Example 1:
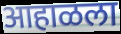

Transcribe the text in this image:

आहाळला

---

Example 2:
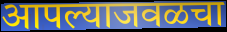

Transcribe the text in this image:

आपल्याजवळचा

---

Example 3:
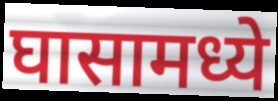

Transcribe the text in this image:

घासामध्ये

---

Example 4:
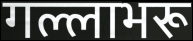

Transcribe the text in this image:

गल्लाभरू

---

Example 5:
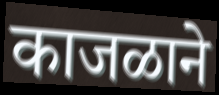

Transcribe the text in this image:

काजळाने